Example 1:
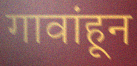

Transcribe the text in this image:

गावांहून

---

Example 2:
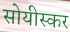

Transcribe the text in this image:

सोयीस्कर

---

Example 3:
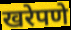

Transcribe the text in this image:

खरेपणे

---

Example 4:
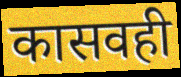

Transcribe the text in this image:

कासवही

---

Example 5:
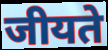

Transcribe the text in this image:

जीयते